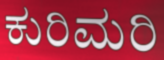
ಕುರಿಮರಿ